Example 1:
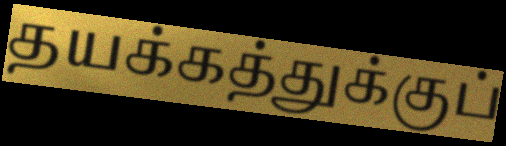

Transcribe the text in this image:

தயக்கத்துக்குப்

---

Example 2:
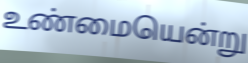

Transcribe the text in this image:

உண்மையென்று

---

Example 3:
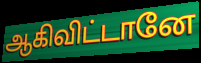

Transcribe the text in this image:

ஆகிவிட்டானே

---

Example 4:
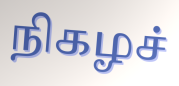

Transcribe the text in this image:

நிகழச்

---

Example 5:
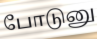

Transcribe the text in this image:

போடுனு